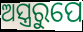
ଅସ୍ତ୍ରରୁପେ